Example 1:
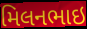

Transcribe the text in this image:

મિલનભાઇ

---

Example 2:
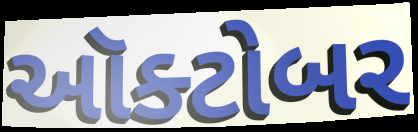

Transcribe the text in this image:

ઑક્ટોબર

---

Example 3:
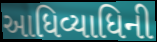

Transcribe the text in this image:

આધિવ્યાધિની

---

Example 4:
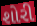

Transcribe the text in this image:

શોરી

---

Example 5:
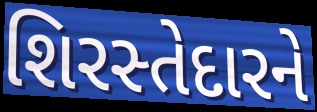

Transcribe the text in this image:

શિરસ્તેદારને